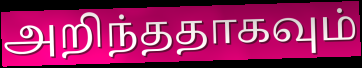
அறிந்ததாகவும்